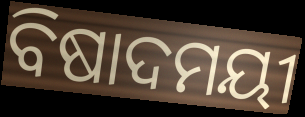
ବିଷାଦମୟୀ